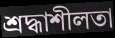
শ্রদ্ধাশীলতা